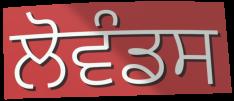
ਲੋਵੰਡਸ